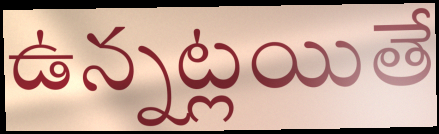
ఉన్నట్లయితే